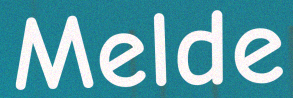
Melde